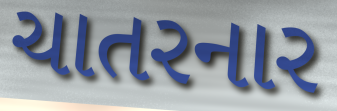
ચાતરનાર